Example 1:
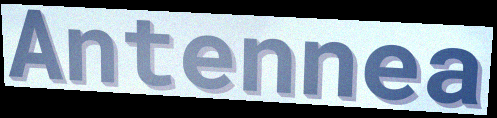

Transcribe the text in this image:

Antennea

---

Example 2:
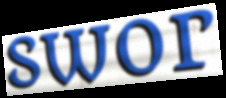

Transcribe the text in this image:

swor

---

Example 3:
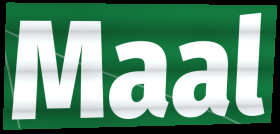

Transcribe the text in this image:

Maal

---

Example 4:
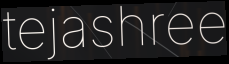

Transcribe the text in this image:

tejashree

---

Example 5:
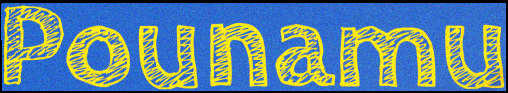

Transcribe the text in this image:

Pounamu